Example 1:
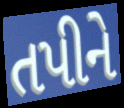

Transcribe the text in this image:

તપીને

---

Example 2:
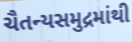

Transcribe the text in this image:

ચૈતન્યસમુદ્રમાંથી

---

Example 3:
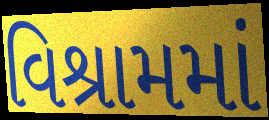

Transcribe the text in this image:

વિશ્રામમાં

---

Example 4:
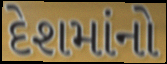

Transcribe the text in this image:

દેશમાંનો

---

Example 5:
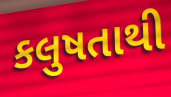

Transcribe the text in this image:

કલુષતાથી